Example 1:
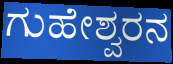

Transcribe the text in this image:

ಗುಹೇಶ್ವರನ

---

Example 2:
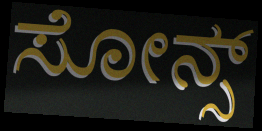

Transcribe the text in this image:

ಸೋನ್ಸ್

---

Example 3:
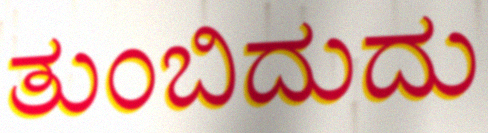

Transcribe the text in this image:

ತುಂಬಿದುದು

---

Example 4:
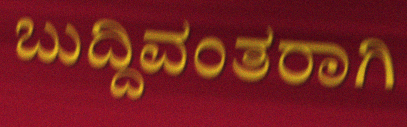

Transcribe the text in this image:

ಬುದ್ದಿವಂತರಾಗಿ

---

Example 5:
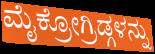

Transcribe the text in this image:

ಮೈಕ್ರೋಗ್ರಿಡ್ಗಳನ್ನು